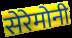
सेरेमोनी